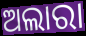
ଅଲାରା